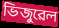
ভিজুৱেল